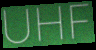
UHF